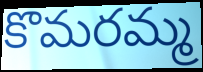
కొమరమ్మ